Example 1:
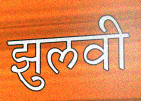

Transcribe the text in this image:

झुलवी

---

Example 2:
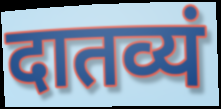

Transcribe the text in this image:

दातव्यं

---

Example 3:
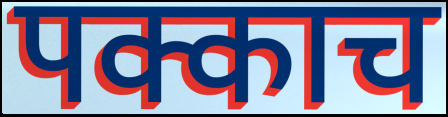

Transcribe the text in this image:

पक्काच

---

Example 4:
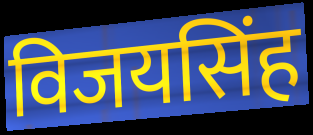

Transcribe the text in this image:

विजयसिंह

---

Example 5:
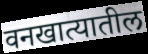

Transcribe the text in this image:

वनखात्यातील